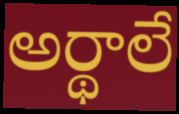
అర్థాలే